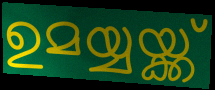
ഉമയ്യയ്ക്ക്